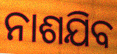
ନାଶଯିବ